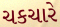
ચકચારે